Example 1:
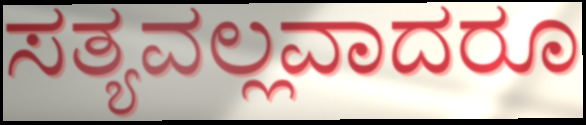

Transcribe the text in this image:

ಸತ್ಯವಲ್ಲವಾದರೂ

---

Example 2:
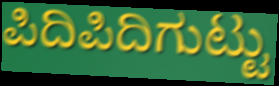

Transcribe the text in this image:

ಪಿದಿಪಿದಿಗುಟ್ಟು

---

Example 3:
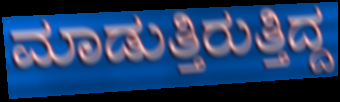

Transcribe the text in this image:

ಮಾಡುತ್ತಿರುತ್ತಿದ್ದ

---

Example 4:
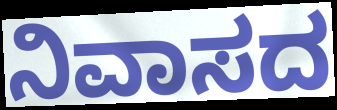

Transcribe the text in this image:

ನಿವಾಸದ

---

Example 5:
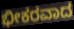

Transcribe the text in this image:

ಭೀಕರವಾದ